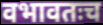
वभावतःच